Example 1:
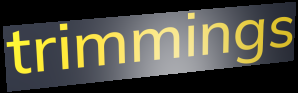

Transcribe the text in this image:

trimmings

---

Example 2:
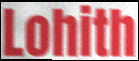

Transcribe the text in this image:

Lohith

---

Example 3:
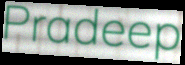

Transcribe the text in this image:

Pradeep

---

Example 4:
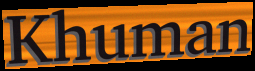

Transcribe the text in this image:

Khuman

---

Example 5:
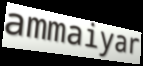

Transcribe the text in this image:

ammaiyar